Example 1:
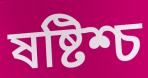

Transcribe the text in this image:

ষষ্টিশ্চ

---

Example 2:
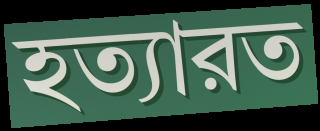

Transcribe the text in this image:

হত্যারত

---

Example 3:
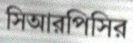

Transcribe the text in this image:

সিআরপিসির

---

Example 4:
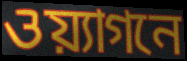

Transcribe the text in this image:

ওয়্যাগনে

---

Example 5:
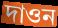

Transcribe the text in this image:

দাওন